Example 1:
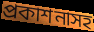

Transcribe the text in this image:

প্রকাশনাসহ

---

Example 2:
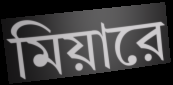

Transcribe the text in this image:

মিয়ারে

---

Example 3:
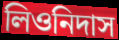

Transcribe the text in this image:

লিওনিদাস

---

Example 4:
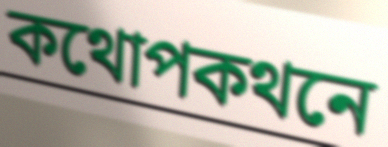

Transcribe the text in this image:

কথোপকথনে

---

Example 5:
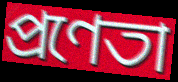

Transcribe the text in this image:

প্রণেতা